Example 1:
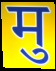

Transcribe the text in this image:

मु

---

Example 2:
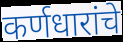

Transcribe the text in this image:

कर्णधारांचे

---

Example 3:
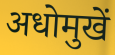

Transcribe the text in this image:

अधोमुखें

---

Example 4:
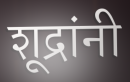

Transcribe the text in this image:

शूद्रांनी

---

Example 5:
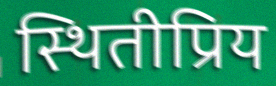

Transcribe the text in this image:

स्थितीप्रिय